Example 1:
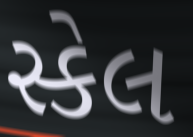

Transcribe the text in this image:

સ્કેલ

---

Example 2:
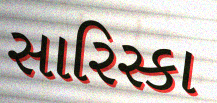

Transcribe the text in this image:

સારિસ્કા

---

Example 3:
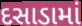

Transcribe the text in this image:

દસાડામાં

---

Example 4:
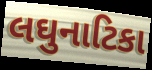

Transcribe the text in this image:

લઘુનાટિકા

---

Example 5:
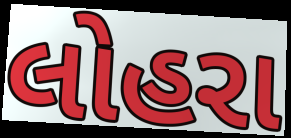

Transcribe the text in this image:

લોહરા